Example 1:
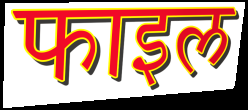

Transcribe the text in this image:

फाइल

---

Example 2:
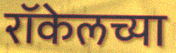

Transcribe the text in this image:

रॉकेलच्या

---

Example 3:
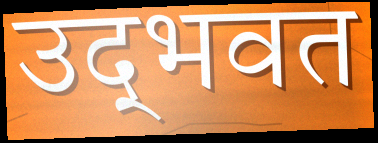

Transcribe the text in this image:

उद्‌भवत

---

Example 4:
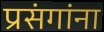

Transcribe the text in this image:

प्रसंगांना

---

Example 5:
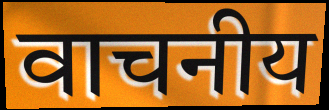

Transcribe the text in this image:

वाचनीय